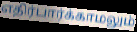
எதிர்பார்க்காமலும்